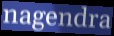
nagendra